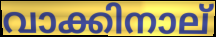
വാക്കിനാല്